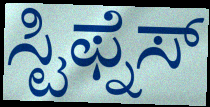
ಸ್ಟಿಫ್ನೆಸ್